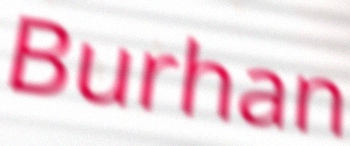
Burhan